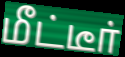
மீட்டீர்